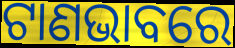
ଟାଣଭାବରେ